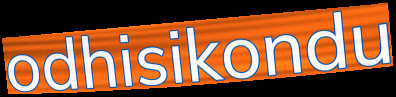
odhisikondu